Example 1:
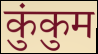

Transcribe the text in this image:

कुंकुम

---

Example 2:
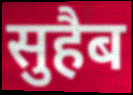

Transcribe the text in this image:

सुहैब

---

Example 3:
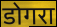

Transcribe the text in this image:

डोगरा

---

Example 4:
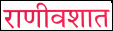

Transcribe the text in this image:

राणीवशात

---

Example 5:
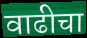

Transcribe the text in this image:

वाढीचा